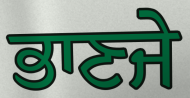
ਭਾਣਜੇ